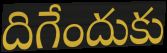
దిగేందుకు